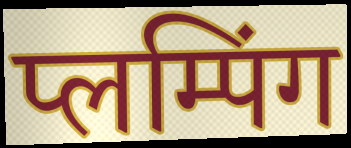
प्लम्पिंग